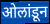
ओलांडून